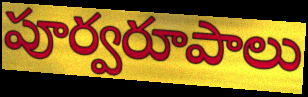
పూర్వరూపాలు